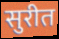
सुरीत